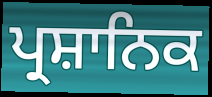
ਪ੍ਰਸ਼ਾਨਿਕ